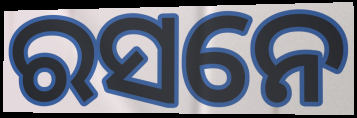
ରସନେ